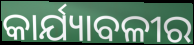
କାର୍ଯ୍ୟାବଳୀର